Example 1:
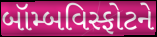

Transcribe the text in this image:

બૉમ્બવિસ્ફોટને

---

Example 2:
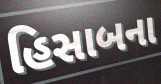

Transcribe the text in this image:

હિસાબના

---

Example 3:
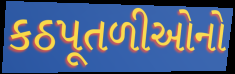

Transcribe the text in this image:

કઠપૂતળીઓનો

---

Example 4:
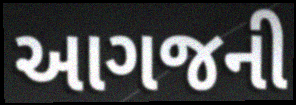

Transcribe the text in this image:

આગજની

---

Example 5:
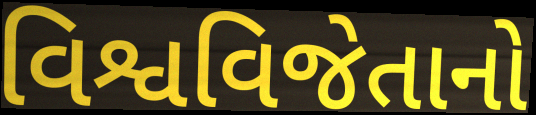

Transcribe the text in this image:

વિશ્વવિજેતાનો